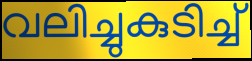
വലിച്ചുകുടിച്ച്